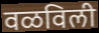
वळविली